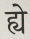
ह्ये